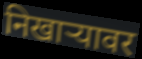
निखार्‍यावर